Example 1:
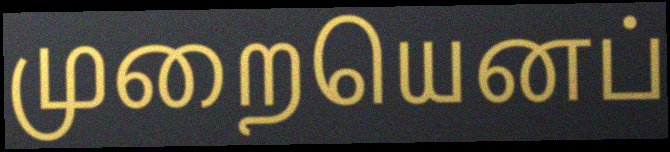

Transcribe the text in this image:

முறையெனப்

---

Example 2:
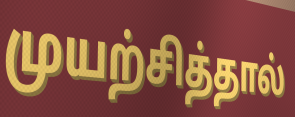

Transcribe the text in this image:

முயற்சித்தால்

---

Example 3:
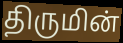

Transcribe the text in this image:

திருமின்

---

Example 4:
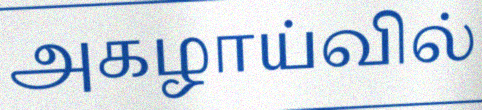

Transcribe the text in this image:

அகழாய்வில்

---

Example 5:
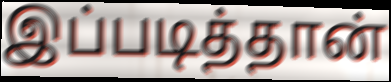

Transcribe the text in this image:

இப்படித்தான்